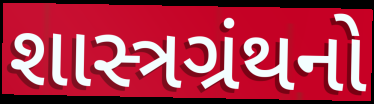
શાસ્ત્રગ્રંથનો